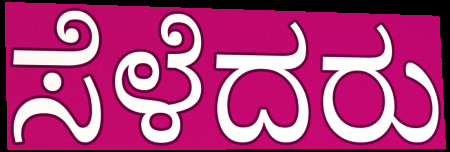
ಸೆಳೆದರು